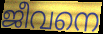
ജീവനെ